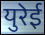
युरेई